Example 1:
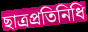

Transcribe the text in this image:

ছাত্রপ্রতিনিধি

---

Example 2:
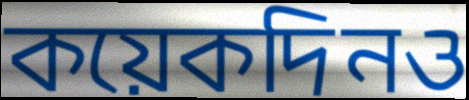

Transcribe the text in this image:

কয়েকদিনও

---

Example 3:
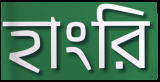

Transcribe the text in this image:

হাংরি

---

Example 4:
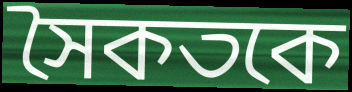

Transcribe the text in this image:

সৈকতকে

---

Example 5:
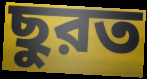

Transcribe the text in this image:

ছুরত